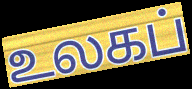
உலகப்